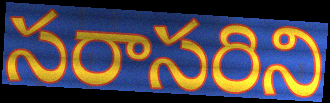
సరాసరిని